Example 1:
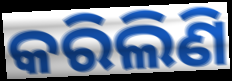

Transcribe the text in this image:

କରିଲିଣି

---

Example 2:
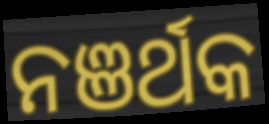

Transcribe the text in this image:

ନଞର୍ଥକ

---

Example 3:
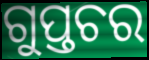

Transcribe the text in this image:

ଗୁପ୍ତଚର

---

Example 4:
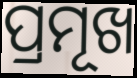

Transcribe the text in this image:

ପ୍ରମୂଖ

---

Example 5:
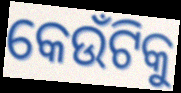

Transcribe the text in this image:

କେଉଁଟିକୁ